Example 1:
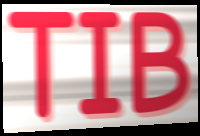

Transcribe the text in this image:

TIB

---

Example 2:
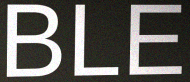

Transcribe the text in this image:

BLE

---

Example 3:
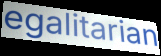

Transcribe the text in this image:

egalitarian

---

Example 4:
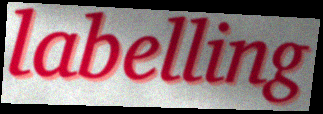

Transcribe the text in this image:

labelling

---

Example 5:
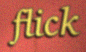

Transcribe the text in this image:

flick